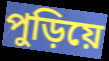
পুড়িয়ে